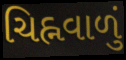
ચિહ્નવાળું